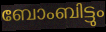
ബോംബിട്ടും